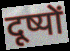
दूष्यों